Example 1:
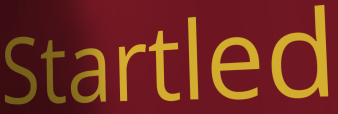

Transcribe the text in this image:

Startled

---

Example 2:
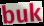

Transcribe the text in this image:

buk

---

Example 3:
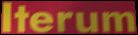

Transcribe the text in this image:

Iterum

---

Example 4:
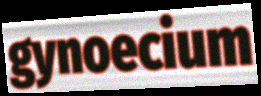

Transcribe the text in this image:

gynoecium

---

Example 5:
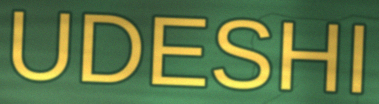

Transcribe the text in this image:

UDESHI